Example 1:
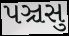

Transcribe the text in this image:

પઞ્ચસુ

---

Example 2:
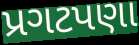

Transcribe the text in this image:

પ્રગટપણા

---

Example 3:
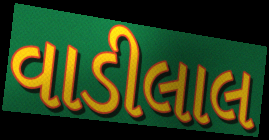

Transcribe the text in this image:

વાડીલાલ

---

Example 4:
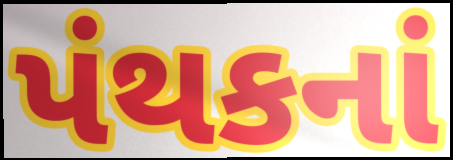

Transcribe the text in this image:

પંથકનાં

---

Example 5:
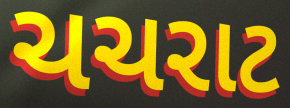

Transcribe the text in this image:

ચચરાટ